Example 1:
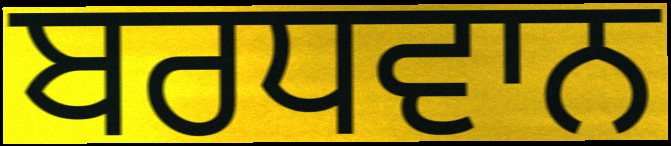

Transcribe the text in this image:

ਬਰਧਵਾਨ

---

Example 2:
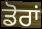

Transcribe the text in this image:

ਡੋਰਾਂ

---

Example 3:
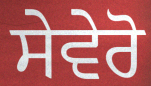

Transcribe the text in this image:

ਸੇਵੇਰੋ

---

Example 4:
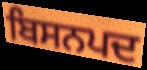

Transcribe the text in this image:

ਬਿਸਨਪਦ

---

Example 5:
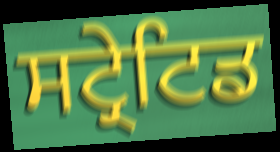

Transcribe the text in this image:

ਸਟ੍ਰੇਟਿਡ